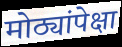
मोठ्यांपेक्षा